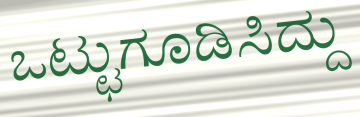
ಒಟ್ಟುಗೂಡಿಸಿದ್ದು